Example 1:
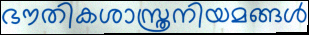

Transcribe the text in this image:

ഭൗതികശാസ്ത്രനിയമങ്ങൾ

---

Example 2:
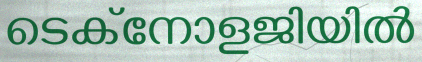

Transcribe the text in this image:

ടെക്‌നോളജിയിൽ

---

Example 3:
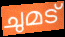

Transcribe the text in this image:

ചുമട്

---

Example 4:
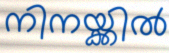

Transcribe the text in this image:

നിനയ്ക്കിൽ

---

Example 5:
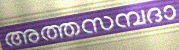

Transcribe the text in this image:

അത്തസമ്പദാ